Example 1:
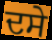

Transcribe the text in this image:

ਦਸੇ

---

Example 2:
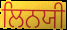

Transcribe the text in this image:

ਲਿਨਯੀ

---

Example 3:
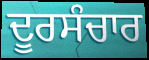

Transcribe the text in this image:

ਦੂਰਸੰਚਾਰ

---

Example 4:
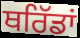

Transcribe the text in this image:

ਥਰਿੱਡਾਂ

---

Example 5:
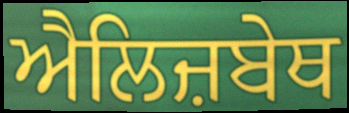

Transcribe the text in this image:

ਐਲਿਜ਼ਬੇਥ